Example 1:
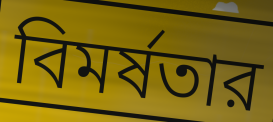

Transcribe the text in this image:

বিমর্ষতার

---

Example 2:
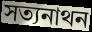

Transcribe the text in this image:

সত্যনাথন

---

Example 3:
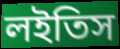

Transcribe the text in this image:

লইতিস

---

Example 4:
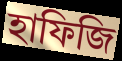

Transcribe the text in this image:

হাফিজি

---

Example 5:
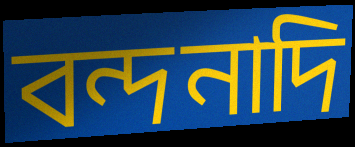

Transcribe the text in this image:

বন্দনাদি